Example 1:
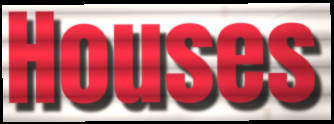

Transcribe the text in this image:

Houses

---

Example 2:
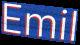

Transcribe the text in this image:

Emil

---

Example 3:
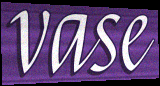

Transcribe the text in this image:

vase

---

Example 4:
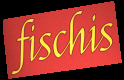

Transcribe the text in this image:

fischis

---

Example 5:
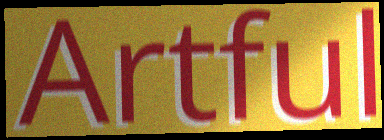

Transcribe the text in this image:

Artful